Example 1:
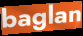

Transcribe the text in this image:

baglan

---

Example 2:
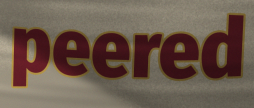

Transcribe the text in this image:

peered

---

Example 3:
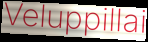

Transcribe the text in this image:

Veluppillai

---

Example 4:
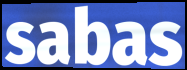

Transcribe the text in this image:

sabas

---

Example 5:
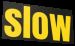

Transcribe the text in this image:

slow